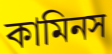
কামিনস